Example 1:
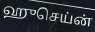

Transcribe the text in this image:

ஹுசெய்ன்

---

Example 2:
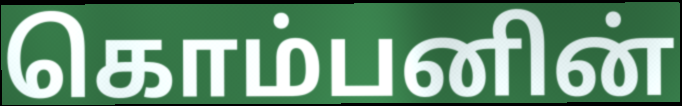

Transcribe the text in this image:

கொம்பனின்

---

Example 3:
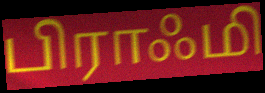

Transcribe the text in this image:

பிராஃமி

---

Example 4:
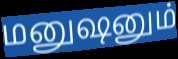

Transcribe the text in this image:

மனுஷனும்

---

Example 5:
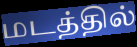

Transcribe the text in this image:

மடத்தில்